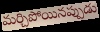
మర్చిపోయినప్పుడు